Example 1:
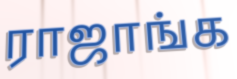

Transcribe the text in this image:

ராஜாங்க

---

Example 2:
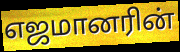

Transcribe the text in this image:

எஜமானரின்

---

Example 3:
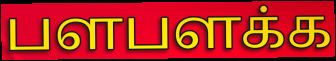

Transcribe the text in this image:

பளபளக்க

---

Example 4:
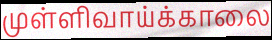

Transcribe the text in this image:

முள்ளிவாய்க்காலை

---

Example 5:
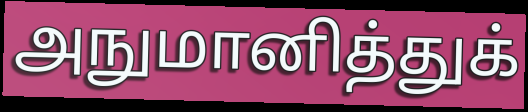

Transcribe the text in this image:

அநுமானித்துக்